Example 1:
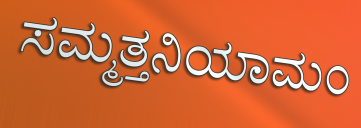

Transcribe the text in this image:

ಸಮ್ಮತ್ತನಿಯಾಮಂ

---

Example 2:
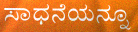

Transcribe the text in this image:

ಸಾಧನೆಯನ್ನೂ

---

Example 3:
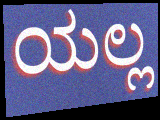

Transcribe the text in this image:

ಯಲ್ಲ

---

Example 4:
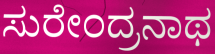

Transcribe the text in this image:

ಸುರೇಂದ್ರನಾಥ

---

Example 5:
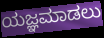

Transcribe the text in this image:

ಯಜ್ಞಮಾಡಲು